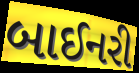
બાઈનરી